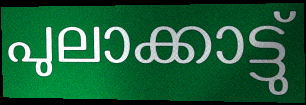
പുലാക്കാട്ടു്